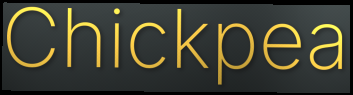
Chickpea